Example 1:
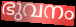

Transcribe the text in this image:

ഭുവനം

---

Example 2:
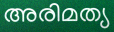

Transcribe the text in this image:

അരിമത്യ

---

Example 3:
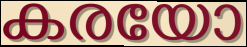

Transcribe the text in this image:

കരയോ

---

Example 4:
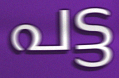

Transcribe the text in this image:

പട്ട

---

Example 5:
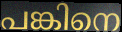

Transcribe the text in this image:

പങ്കിനെ